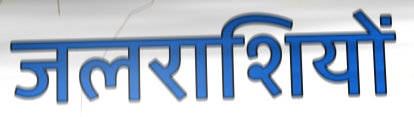
जलराशियों